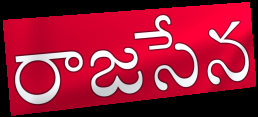
రాజసేన